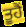
ਤੂਹੈਂ